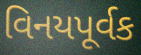
વિનયપૂર્વક